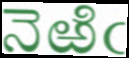
నెఱిఁ